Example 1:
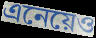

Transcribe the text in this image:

এনেয়েও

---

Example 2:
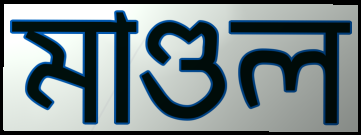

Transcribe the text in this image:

মাণ্ডল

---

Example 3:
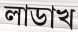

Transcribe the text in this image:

লাডাখ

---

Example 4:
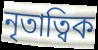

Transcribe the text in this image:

নৃতাত্বিক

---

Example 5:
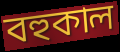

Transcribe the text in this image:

বহুকাল